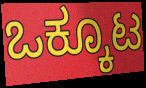
ಒಕ್ಕೂಟ